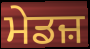
ਮੇਡਜ਼